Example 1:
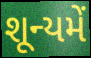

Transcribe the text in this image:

શૂન્યમેં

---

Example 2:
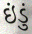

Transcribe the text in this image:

ઇંડું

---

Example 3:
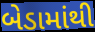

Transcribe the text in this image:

બેડામાંથી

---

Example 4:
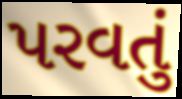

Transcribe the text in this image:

પરવતું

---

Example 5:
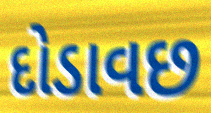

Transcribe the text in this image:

દોડાવછ